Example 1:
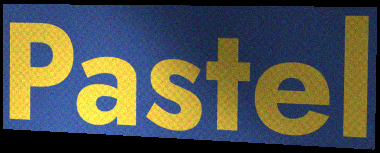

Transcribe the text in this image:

Pastel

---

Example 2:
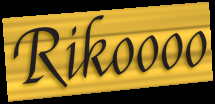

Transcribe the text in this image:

Rikoooo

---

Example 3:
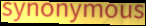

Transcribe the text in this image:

synonymous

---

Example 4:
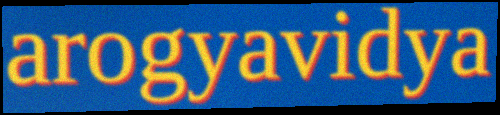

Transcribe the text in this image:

arogyavidya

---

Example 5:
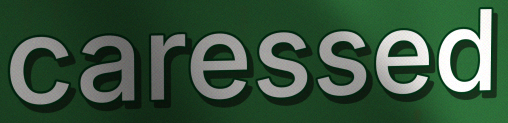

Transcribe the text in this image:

caressed